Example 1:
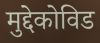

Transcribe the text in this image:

मुद्देकोविड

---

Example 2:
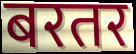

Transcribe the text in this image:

बरतर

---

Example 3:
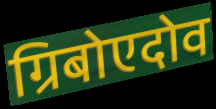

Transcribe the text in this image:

ग्रिबोएदोव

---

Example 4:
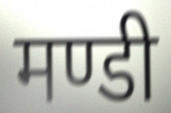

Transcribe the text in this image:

मण्डी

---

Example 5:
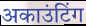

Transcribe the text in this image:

अकाउंटिंग